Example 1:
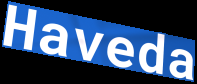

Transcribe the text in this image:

Haveda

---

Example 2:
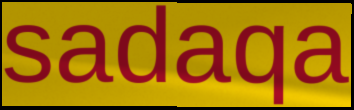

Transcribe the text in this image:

sadaqa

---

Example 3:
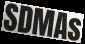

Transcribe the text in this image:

SDMAs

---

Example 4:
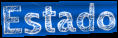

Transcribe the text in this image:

Estado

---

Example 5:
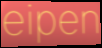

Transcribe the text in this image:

eipen